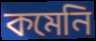
কমেনি